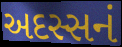
અદસ્સનં